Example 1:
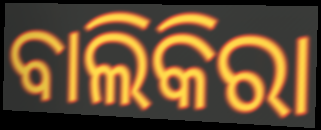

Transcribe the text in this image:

ବାଲିକିରା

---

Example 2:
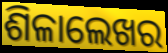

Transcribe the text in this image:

ଶିଳାଲେଖର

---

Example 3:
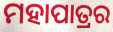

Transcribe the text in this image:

ମହାପାତ୍ରର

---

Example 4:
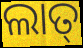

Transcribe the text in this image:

ଲାତ୍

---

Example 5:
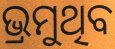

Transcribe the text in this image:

ଭ୍ରମୁଥିବ